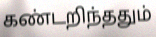
கண்டறிந்ததும்